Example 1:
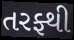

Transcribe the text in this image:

તરફ્થી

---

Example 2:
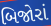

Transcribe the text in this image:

બિજોરાં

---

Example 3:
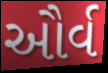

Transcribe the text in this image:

ઔર્વ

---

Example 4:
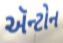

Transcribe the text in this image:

ઍન્ટોન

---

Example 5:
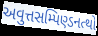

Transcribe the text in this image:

અવુત્તસમ્પિણ્ડનત્થો